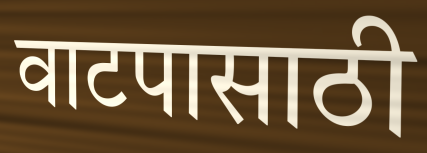
वाटपासाठी